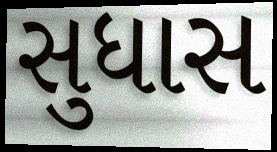
સુધાસ